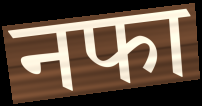
नफा